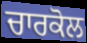
ਚਾਰਕੋਲ